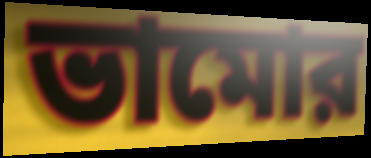
ভামোর